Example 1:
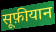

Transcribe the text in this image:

सूफ़ीयान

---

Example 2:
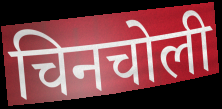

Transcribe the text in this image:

चिनचोली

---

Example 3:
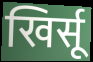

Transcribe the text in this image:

खिर्सू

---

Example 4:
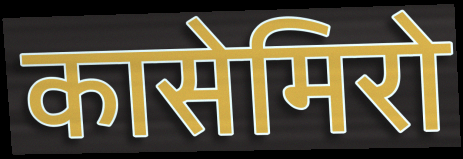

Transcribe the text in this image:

कासेमिरो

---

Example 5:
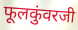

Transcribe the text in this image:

फूलकुंवरजी